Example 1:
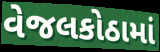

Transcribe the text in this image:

વેજલકોઠામાં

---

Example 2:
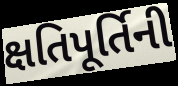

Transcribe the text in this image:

ક્ષતિપૂર્તિની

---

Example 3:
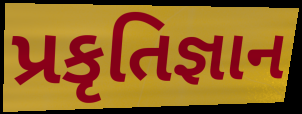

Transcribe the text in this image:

પ્રકૃતિજ્ઞાન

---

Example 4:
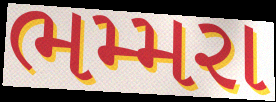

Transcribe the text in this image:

ભમ્મરા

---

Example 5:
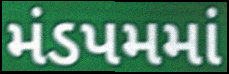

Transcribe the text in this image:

મંડપમમાં